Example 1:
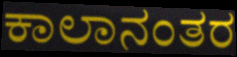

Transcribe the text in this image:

ಕಾಲಾನಂತರ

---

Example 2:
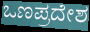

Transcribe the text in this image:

ಒಣಪ್ರದೇಶ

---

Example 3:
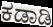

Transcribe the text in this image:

ಕಡಾಡಿ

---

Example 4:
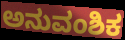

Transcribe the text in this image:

ಅನುವಂಶಿಕ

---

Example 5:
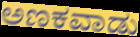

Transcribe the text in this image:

ಅಣಕವಾಡು